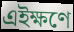
এইক্ষণে